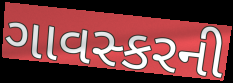
ગાવસ્કરની